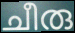
ചീരു